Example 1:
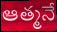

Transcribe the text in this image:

ఆత్మనే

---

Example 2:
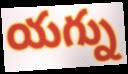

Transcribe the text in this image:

యగ్ను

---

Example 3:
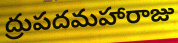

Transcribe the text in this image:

ద్రుపదమహారాజు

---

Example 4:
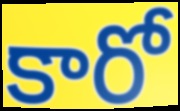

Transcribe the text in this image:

కారో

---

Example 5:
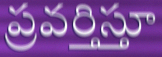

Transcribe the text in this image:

ప్రవర్తిస్తూ